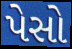
પેસો